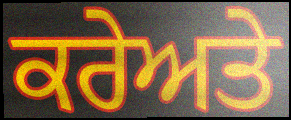
ਕਰੇਅਤੇ